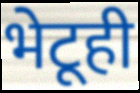
भेटूही